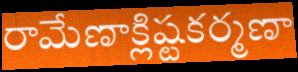
రామేణాక్లిష్టకర్మణా